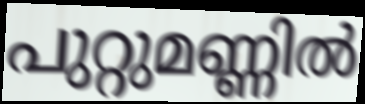
പുറ്റുമണ്ണിൽ